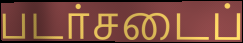
படர்சடைப்